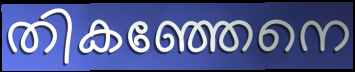
തികഞ്ഞേനെ